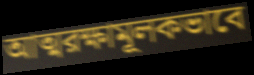
আত্মরক্ষামূলকভাবে